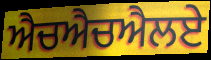
ਐਚਐਚਐਲਏ